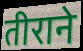
तीराने